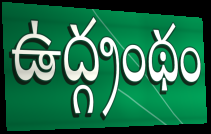
ఉద్గ్రంథం